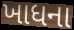
ખાધના